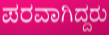
ಪರವಾಗಿದ್ದರು